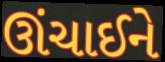
ઊંચાઈને